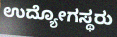
ಉದ್ಯೋಗಸ್ಥರು